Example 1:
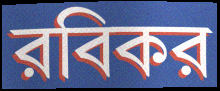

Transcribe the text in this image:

রবিকর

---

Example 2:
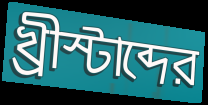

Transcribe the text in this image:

খ্রীস্টাব্দের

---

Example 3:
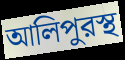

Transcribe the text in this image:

আলিপুরস্থ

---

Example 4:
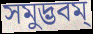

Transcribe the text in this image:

সমুদ্ভবম্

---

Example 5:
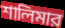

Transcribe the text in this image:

শালিমার